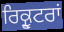
ਰਿਕ੍ਰੂਟਰਾਂ